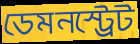
ডেমনস্ট্রেট